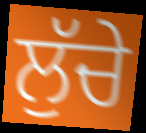
ਲੁੱਚੇ